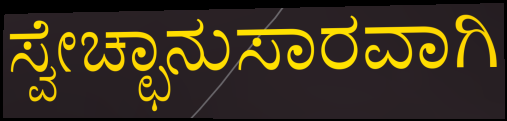
ಸ್ವೇಚ್ಛಾನುಸಾರವಾಗಿ